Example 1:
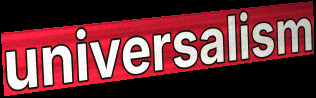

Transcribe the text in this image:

universalism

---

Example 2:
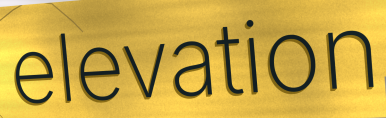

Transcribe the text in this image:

elevation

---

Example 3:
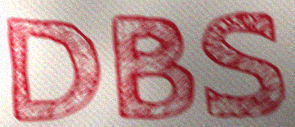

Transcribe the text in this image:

DBS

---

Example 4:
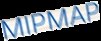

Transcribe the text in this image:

MIPMAP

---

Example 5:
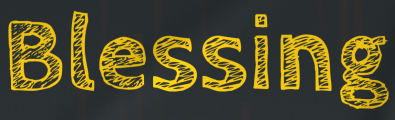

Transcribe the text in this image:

Blessing